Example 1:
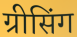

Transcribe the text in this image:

ग्रीसिंग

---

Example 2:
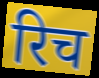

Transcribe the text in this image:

रिच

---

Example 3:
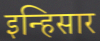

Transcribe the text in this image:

इन्हिसार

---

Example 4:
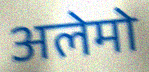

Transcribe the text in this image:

अलेमो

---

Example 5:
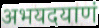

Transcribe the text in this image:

अभयदयाणं